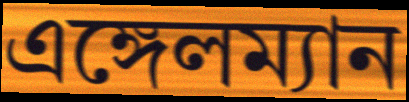
এঙ্গেলম্যান